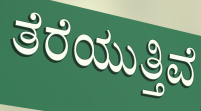
ತೆರೆಯುತ್ತಿವೆ